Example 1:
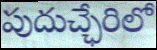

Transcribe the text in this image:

పుదుచ్ఛేరిలో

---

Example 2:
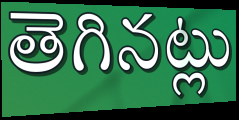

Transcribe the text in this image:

తెగినట్లు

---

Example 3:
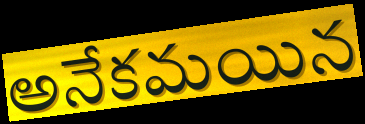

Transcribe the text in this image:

అనేకమయిన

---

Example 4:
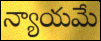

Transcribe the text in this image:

న్యాయమే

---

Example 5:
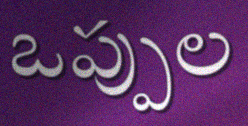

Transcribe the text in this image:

ఒప్పుల